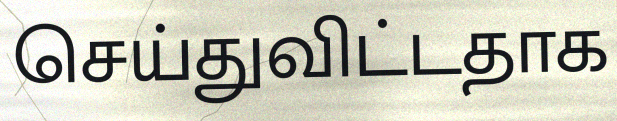
செய்துவிட்டதாக